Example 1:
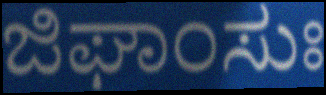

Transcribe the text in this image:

ಜಿಘಾಂಸುಃ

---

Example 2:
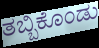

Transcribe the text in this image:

ತಬ್ಬಿಕೊಂಡು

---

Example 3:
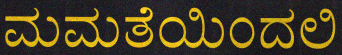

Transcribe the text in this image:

ಮಮತೆಯಿಂದಲಿ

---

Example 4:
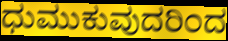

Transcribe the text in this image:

ಧುಮುಕುವುದರಿಂದ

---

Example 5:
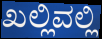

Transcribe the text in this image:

ಖಲ್ಲಿವಲ್ಲಿ